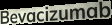
Bevacizumab